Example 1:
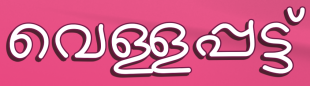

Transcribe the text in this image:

വെള്ളപ്പട്ട്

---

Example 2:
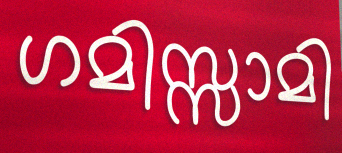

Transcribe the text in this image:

ഗമിസ്സാമി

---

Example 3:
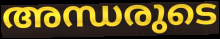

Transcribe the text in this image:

അന്ധരുടെ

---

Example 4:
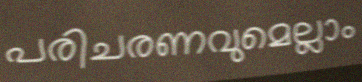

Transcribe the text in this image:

പരിചരണവുമെല്ലാം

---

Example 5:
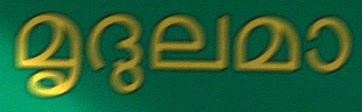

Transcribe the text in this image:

മൃദുലമാ